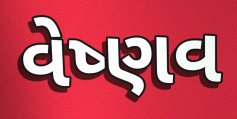
વેષ્ણવ